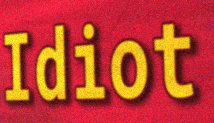
Idiot